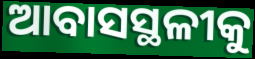
ଆବାସସ୍ଥଳୀକୁ